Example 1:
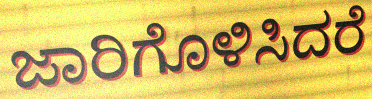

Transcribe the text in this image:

ಜಾರಿಗೊಳಿಸಿದರೆ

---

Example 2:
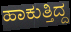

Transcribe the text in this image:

ಹಾಕುತ್ತಿದ್ದ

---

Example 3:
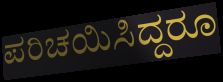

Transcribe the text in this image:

ಪರಿಚಯಿಸಿದ್ದರೂ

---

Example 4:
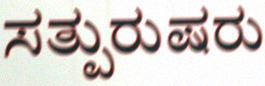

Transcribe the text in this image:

ಸತ್ಪುರುಷರು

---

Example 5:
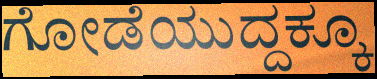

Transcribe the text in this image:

ಗೋಡೆಯುದ್ದಕ್ಕೂ